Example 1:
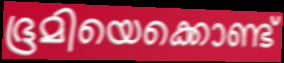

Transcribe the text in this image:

ഭൂമിയെക്കൊണ്ട്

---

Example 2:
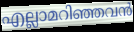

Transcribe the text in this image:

എല്ലാമറിഞ്ഞവൻ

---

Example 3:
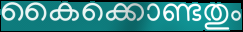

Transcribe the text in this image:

കൈക്കൊണ്ടതും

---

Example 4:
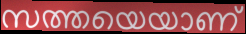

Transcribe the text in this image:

സത്തയെയാണ്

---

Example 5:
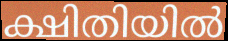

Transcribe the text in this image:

ക്ഷിതിയിൽ